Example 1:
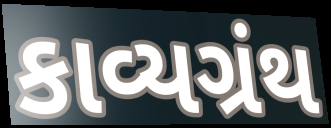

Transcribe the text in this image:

કાવ્યગ્રંથ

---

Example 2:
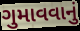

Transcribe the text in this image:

ગુમાવવાનું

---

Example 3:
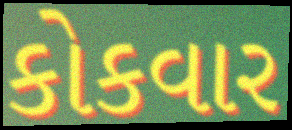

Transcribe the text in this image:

કોકવાર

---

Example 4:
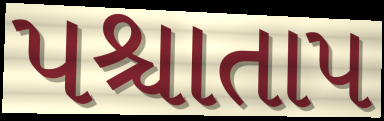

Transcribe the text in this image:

પશ્ચાતાપ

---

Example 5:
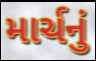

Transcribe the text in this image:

માર્ચનું